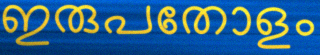
ഇരുപതോളം